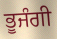
ਭੂਜੰਗੀ